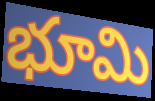
భూమి